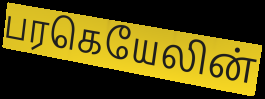
பரகெயேலின்